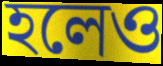
হলেও